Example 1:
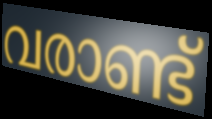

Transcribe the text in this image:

വരാണ്ട്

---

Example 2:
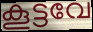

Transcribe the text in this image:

കൂട്ടവേ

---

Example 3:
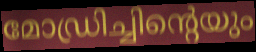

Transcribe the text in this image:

മോഡ്രിച്ചിന്റെയും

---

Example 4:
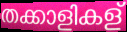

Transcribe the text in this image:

തക്കാളികള്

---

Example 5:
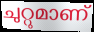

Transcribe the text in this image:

ചുറ്റുമാണ്